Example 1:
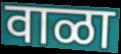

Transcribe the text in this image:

वाळा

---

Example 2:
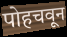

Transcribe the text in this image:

पोहचवून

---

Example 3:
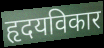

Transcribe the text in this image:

हृदयविकार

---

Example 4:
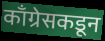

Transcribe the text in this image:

काँग्रेसकडून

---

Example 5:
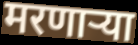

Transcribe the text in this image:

मरणार्‍या